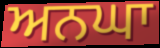
ਅਨਘਾ